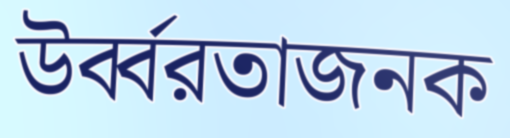
উর্ব্বরতাজনক